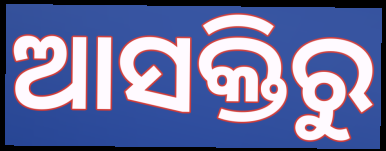
ଆସକ୍ତିରୁ